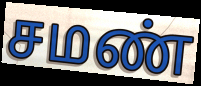
சமண்